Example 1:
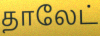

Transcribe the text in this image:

தாலேட்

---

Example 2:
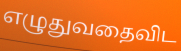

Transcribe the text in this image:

எழுதுவதைவிட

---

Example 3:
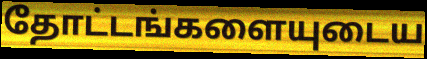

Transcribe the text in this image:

தோட்டங்களையுடைய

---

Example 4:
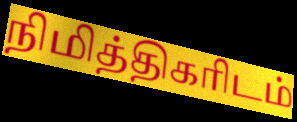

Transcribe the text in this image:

நிமித்திகரிடம்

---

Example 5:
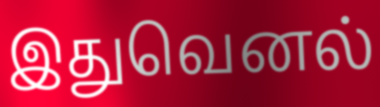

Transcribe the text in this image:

இதுவெனல்